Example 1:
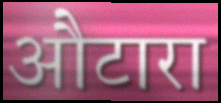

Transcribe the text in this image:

औटारा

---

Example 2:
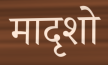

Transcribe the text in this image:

मादृशो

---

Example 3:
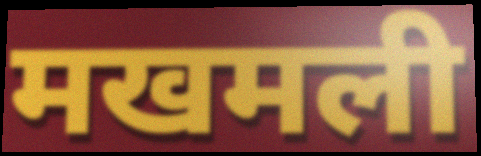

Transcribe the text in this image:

मखमली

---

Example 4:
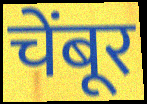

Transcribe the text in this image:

चेंबूर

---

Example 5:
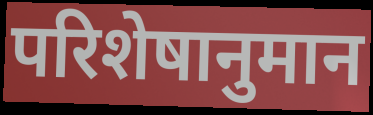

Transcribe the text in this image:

परिशेषानुमान